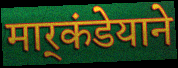
मार्कंडेयाने